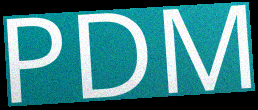
PDM